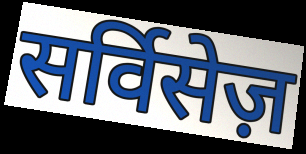
सर्विसेज़